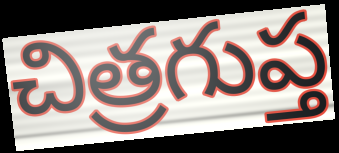
చిత్రగుప్త